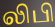
லிபி